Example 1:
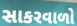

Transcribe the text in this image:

સાકરવાળો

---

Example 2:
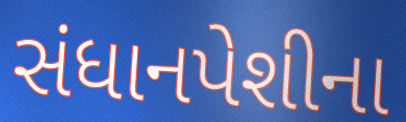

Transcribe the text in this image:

સંધાનપેશીના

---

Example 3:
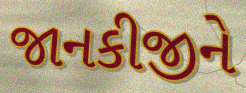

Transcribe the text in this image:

જાનકીજીને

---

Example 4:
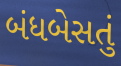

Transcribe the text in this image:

બંધબેસતું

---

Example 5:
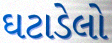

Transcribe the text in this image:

ઘટાડેલો